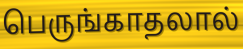
பெருங்காதலால்